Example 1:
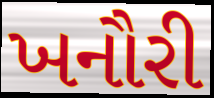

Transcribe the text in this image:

ખનૌરી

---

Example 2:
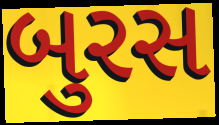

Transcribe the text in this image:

બુરસ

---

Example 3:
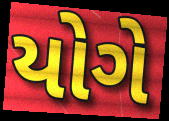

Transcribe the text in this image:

યોગે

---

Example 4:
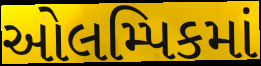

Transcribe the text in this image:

ઓલમ્પિકમાં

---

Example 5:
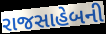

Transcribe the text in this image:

રાજસાહેબની